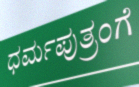
ಧರ್ಮಪುತ್ರಂಗೆ